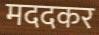
मददकर